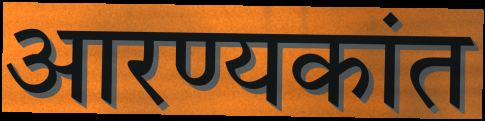
आरण्यकांत